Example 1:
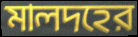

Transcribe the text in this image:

মালদহের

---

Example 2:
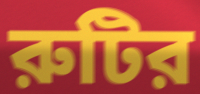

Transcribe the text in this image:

রুটির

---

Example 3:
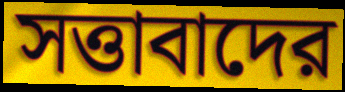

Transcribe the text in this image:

সত্তাবাদের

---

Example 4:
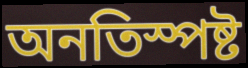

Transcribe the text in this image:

অনতিস্পষ্ট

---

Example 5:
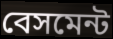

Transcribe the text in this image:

বেসমেন্ট